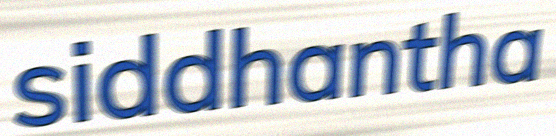
siddhantha